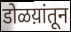
डोळय़ांतून